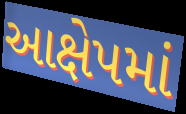
આક્ષેપમાં